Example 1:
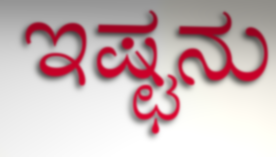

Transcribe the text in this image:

ಇಷ್ಟನು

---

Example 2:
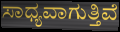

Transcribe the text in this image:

ಸಾಧ್ಯವಾಗುತ್ತಿವೆ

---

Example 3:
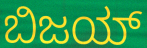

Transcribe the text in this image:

ಬಿಜಯ್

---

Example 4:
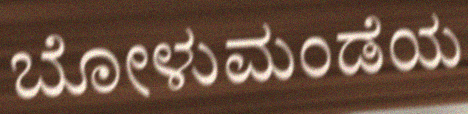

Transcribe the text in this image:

ಬೋಳುಮಂಡೆಯ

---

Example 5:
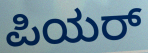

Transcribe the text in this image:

ಪಿಯರ್